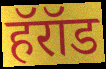
हॅरॉड